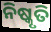
ନିଷ୍କୃତି